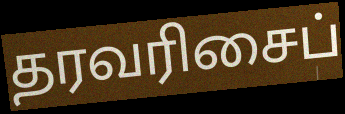
தரவரிசைப்